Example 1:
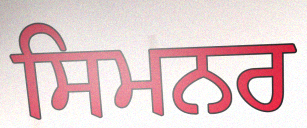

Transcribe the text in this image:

ਸਿਮਨਰ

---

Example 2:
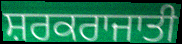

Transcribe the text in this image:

ਸ਼ਰਕਰਾਜਾਤੀ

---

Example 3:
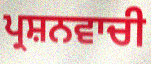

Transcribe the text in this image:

ਪ੍ਰਸ਼ਨਵਾਚੀ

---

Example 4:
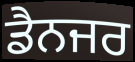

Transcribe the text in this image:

ਡੈਨਜਰ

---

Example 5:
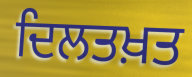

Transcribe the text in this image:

ਦਿਲਤਖ਼ਤ